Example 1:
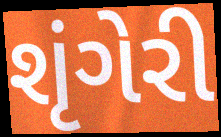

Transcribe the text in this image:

શૃંગેરી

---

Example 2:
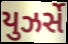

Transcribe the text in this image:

યુઝર્સે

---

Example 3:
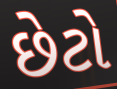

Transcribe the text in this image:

છેટો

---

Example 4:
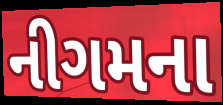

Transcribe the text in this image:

નીગમના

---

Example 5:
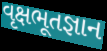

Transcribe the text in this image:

વૃક્ષભૂતજ્ઞાન